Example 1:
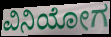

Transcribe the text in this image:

ವಿನಿಯೋಗ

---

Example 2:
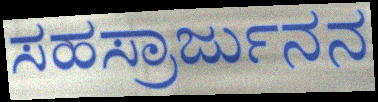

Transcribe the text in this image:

ಸಹಸ್ರಾರ್ಜುನನ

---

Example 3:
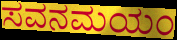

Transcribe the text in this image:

ಸವನಮಯಂ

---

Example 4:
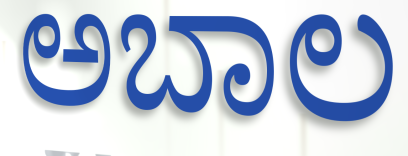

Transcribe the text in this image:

ಅಬಾಲ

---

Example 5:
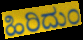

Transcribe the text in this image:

ಹಿರಿದುಂ